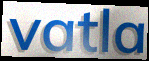
vatla